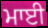
ਮਾਈ